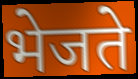
भेजते